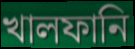
খালফানি